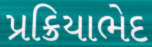
પ્રક્રિયાભેદ